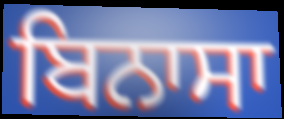
ਬਿਨਾਸਾ